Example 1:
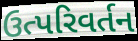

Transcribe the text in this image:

ઉત્પરિવર્તન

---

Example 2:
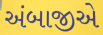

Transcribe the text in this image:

અંબાજીએ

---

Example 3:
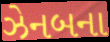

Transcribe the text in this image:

ઝેનબના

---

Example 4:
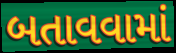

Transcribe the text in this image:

બતાવવામાં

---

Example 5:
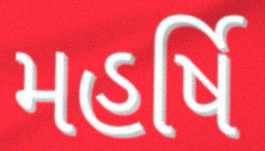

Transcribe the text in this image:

મહર્ષિ